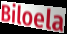
Biloela